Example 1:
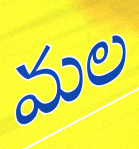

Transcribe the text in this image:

మల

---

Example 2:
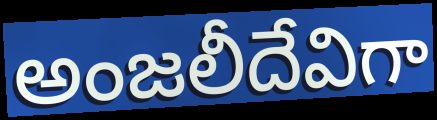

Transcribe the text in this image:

అంజలీదేవిగా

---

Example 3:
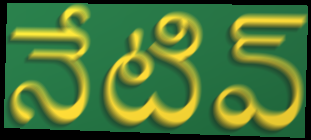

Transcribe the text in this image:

నేటివ్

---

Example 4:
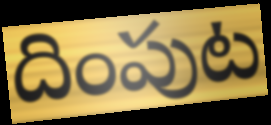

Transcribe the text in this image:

దింపుట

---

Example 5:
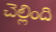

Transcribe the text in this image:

చెల్లింది